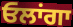
ਓਲਾਂਗਾ